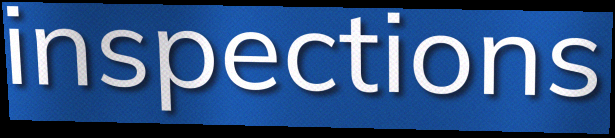
inspections